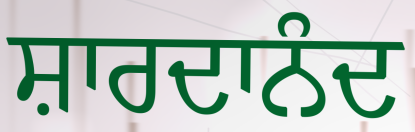
ਸ਼ਾਰਦਾਨੰਦ